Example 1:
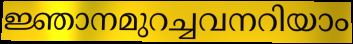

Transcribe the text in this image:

ജ്ഞാനമുറച്ചവനറിയാം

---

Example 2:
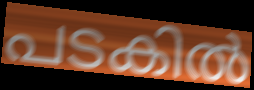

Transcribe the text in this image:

പടകിൽ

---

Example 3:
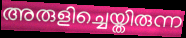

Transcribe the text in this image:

അരുളിച്ചെയ്തിരുന്ന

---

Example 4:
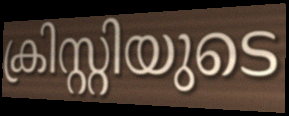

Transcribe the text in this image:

ക്രിസ്റ്റിയുടെ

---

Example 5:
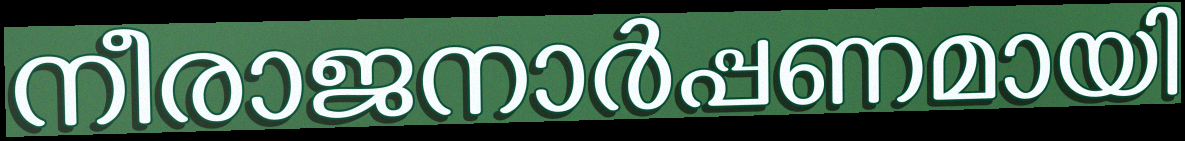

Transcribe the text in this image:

നീരാജനാർപ്പണമായി